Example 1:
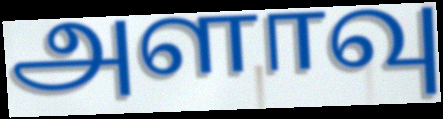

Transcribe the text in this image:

அளாவு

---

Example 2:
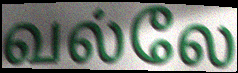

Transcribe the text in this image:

வல்லே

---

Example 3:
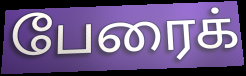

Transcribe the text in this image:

பேரைக்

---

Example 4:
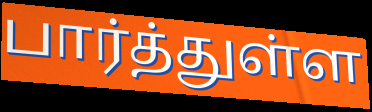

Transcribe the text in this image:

பார்த்துள்ள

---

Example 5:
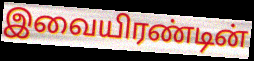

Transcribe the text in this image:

இவையிரண்டின்